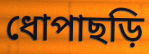
ধোপাছড়ি